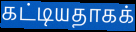
கட்டியதாகக்